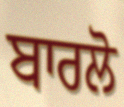
ਬਾਰਲੋ